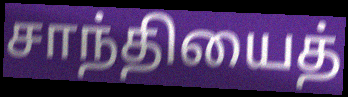
சாந்தியைத்